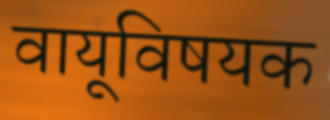
वायूविषयक